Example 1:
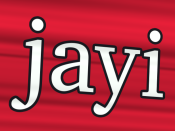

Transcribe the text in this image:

jayi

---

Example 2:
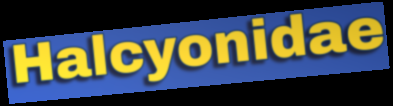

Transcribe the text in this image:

Halcyonidae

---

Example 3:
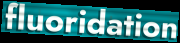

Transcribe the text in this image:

fluoridation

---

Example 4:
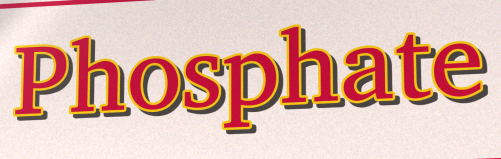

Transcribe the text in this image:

Phosphate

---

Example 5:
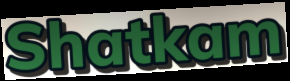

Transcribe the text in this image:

Shatkam